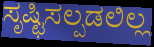
ಸೃಷ್ಟಿಸಲ್ಪಡಲಿಲ್ಲ